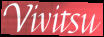
Vivitsu